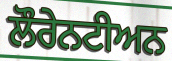
ਲੌਰੇਨਟੀਅਨ